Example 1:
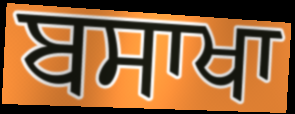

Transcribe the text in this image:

ਬਸਾਖਾ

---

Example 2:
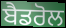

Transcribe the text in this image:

ਬੈਡਰੋਲ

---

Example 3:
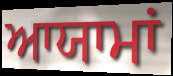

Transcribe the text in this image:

ਆਯਾਮਾਂ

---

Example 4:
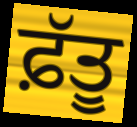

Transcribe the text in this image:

ਫ਼ੱਤੂ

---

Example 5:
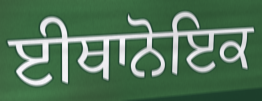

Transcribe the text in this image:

ਈਥਾਨੋਇਕ